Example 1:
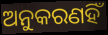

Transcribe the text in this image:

ଅନୁକରଣହିଁ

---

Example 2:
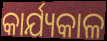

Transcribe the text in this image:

କାର୍ଯ୍ୟକାଳ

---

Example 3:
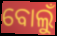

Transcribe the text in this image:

ବୋଲୁଁ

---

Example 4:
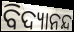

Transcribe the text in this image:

ବିଦ୍ୟାନନ୍ଦ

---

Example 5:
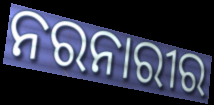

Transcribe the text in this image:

ନରନାରୀର